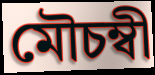
মৌচম্বী